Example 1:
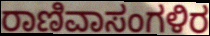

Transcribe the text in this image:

ರಾಣಿವಾಸಂಗಳಿರ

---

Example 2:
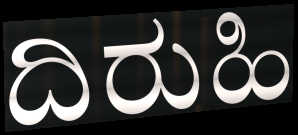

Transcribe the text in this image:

ದಿರುಹಿ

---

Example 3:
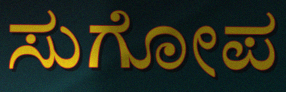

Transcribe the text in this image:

ಸುಗೋಪ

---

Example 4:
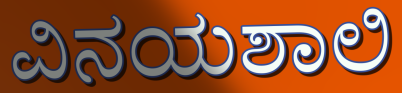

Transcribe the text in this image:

ವಿನಯಶಾಲಿ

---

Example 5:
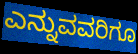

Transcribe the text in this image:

ಎನ್ನುವವರಿಗೂ